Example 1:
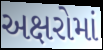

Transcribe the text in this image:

અક્ષરોમાં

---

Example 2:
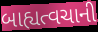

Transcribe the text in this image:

બાહ્યત્વચાની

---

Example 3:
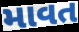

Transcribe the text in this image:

માવત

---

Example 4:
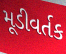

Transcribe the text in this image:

મૂડીવર્તક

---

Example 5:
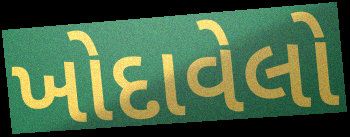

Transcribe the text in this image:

ખોદાવેલો